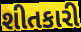
શીતકારી